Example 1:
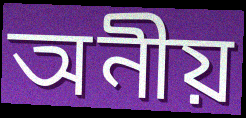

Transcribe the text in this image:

অনীয়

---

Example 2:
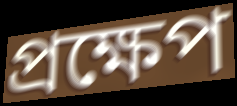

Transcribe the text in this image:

প্ৰক্ষেপ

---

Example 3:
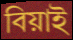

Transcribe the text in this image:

বিয়াই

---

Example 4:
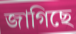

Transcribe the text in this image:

জাগিছে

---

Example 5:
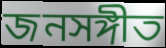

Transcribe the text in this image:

জনসঙ্গীত